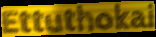
Ettuthokai